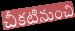
చీకటినుంచి